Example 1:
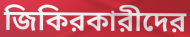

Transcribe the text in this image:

জিকিরকারীদের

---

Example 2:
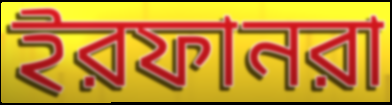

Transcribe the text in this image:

ইরফানরা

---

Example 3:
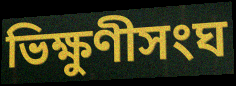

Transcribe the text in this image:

ভিক্ষুণীসংঘ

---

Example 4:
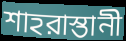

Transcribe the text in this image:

শাহরাস্তানী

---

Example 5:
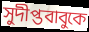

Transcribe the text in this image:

সুদীপ্তবাবুকে